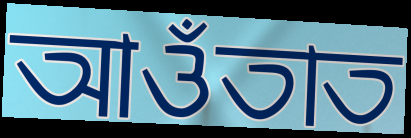
আওঁতাত